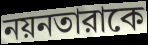
নয়নতারাকে